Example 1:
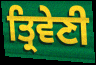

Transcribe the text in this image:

ਤ੍ਰਿਵੇਣੀ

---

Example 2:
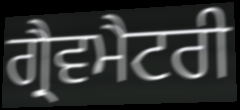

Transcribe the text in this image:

ਗ੍ਰੈਵਮੈਟਰੀ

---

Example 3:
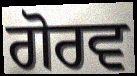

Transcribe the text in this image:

ਗੋਰਵ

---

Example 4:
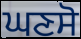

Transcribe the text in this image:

ਘਣਸੋ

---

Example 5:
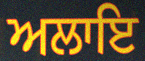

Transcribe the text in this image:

ਅਲਾਇ